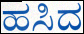
ಹಸಿದ